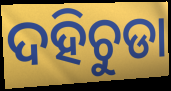
ଦହିଚୁଡା